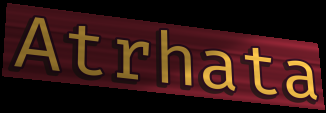
Atrhata